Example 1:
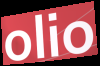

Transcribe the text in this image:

olio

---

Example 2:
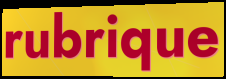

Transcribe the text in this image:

rubrique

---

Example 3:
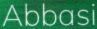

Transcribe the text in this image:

Abbasi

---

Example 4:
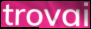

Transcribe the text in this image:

trovai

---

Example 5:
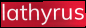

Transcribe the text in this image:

lathyrus